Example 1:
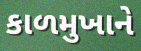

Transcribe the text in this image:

કાળમુખાને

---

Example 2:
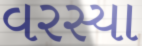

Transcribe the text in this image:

વરસ્યા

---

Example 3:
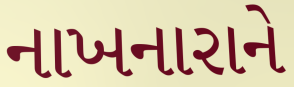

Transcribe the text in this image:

નાખનારાને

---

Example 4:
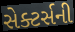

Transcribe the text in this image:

સેક્ટર્સની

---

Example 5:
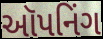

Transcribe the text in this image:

ઑપનિંગ